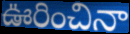
ఊరించినా